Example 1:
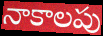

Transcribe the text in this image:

నాకాలపు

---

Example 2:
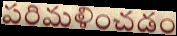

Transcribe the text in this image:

పరిమళించడం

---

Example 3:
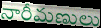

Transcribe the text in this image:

నారీమణులు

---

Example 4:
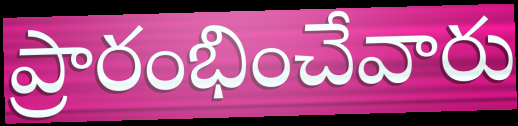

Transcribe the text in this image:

ప్రారంభించేవారు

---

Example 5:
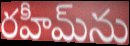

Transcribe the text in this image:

రహీమ్‌ను